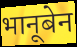
भानूबेन